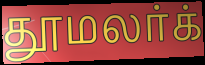
தூமலர்க்